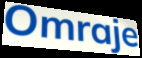
Omraje